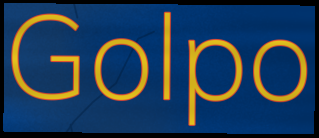
Golpo